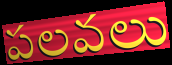
పలవలు